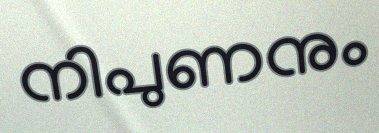
നിപുണനും